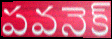
పవనెక్